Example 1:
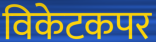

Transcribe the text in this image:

विकेटकपर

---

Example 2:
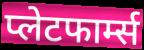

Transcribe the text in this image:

प्लेटफार्म्स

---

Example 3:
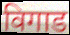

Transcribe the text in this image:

विगाड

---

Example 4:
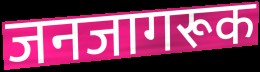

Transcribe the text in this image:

जनजागरूक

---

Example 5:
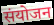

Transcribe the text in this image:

संयोजन